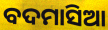
ବଦମାସିଆ